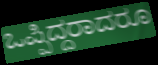
ಒಪ್ಪಿದ್ದರಾದರೂ